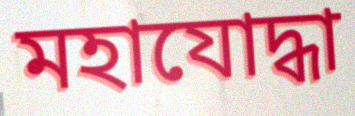
মহাযোদ্ধা